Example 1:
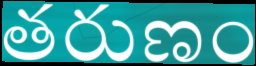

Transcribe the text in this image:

తరుణం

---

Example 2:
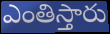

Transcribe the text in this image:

ఎంతిస్తారు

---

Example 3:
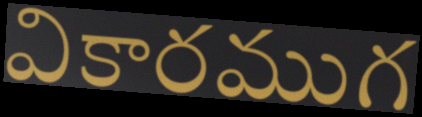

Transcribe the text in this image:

వికారముగ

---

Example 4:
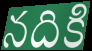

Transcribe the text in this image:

నదికి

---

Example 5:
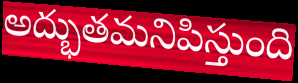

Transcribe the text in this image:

అద్భుతమనిపిస్తుంది